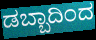
ಡಬ್ಬಾದಿಂದ